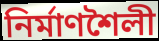
নির্মাণশৈলী